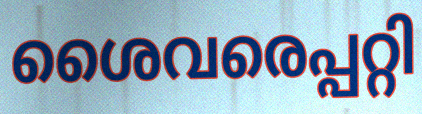
ശൈവരെപ്പറ്റി